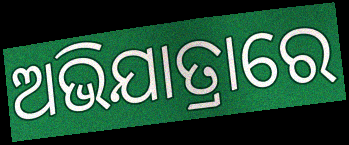
ଅଭିଯାତ୍ରାରେ